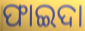
ଫାଇଦା